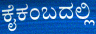
ಕೈಕಂಬದಲ್ಲಿ